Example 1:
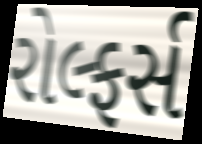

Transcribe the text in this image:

રોલ્ફર્સ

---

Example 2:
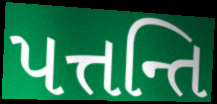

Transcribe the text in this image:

પત્તન્તિ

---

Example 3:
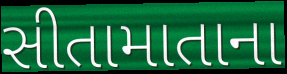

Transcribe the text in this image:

સીતામાતાના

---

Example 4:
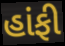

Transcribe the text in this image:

હાંફી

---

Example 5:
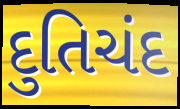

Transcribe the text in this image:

દુતિચંદ